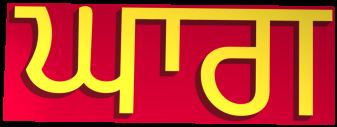
ਘਾਗ